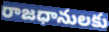
రాజధానులకు